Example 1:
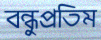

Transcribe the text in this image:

বন্ধুপ্রতিম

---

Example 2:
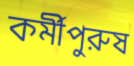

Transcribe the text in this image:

কর্মীপুরুষ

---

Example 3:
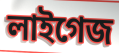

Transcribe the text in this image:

লাইগেজ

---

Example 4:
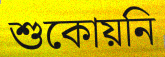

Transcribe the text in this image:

শুকোয়নি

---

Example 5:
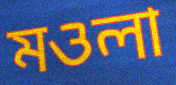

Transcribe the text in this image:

মওলা